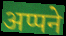
अप्पने